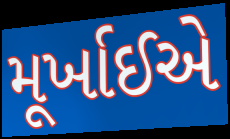
મૂર્ખાઈએ